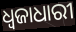
ଧ୍ବଜାଧାରୀ